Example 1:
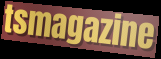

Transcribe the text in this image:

tsmagazine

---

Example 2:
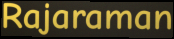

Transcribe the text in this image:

Rajaraman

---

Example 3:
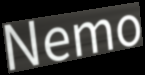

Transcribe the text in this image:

Nemo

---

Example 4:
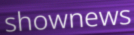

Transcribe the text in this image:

shownews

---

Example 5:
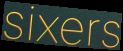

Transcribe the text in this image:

sixers